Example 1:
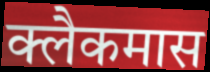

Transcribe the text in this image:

क्लैकमास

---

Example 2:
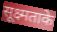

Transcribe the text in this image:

सूक्ष्मताके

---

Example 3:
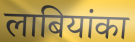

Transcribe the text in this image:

लाबियांका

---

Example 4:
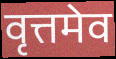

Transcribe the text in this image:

वृत्तमेव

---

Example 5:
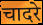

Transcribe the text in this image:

चादरे